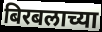
बिरबलाच्या